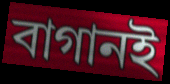
বাগানই